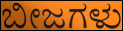
ಬೀಜಗಳು